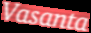
Vasanta